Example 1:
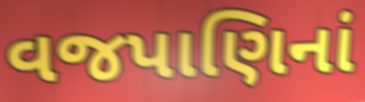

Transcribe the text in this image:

વજપાણિનાં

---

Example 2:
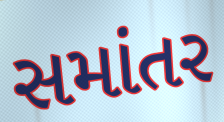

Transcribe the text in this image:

સમાંતર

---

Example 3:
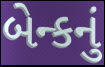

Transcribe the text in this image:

બેન્કનું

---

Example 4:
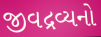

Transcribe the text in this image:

જીવદ્રવ્યનો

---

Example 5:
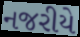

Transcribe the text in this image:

નજરીયે